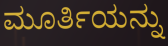
ಮೂರ್ತಿಯನ್ನು